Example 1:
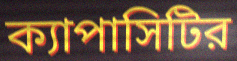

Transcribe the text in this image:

ক্যাপাসিটির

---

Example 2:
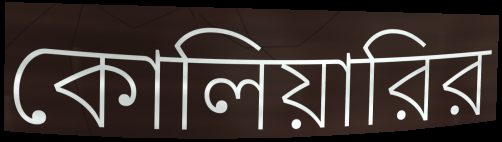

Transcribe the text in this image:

কোলিয়ারির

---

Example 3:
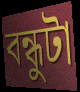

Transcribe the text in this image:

বন্ধুটা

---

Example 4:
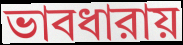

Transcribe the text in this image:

ভাবধারায়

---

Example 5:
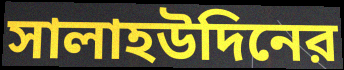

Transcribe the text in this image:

সালাহউদিনের